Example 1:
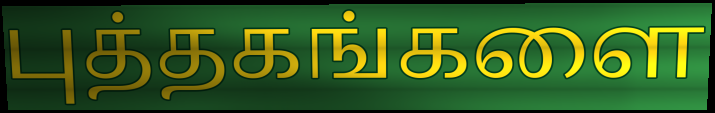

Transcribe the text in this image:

புத்தகங்களை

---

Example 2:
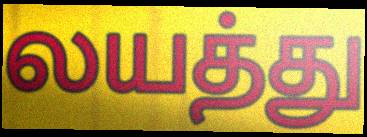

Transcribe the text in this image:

லயத்து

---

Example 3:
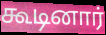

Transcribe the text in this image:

கூடினார்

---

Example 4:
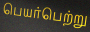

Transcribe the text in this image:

பெயர்பெற்று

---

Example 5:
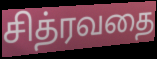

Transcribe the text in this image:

சித்ரவதை